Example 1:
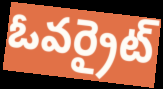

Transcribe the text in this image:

ఓవర్రైట్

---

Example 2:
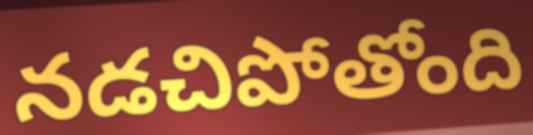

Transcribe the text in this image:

నడచిపోతోంది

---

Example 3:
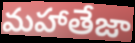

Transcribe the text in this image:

మహాతేజా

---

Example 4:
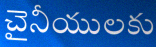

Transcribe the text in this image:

చైనీయులకు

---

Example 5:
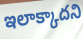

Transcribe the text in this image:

ఇలాక్కాదని